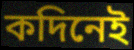
কদিনেই